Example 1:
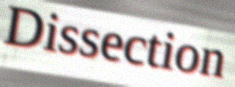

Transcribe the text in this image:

Dissection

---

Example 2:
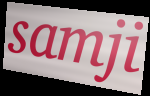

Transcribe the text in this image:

samji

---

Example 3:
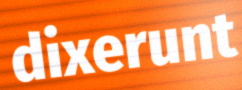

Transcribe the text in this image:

dixerunt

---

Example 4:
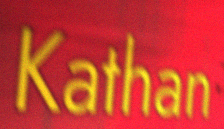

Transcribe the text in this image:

Kathan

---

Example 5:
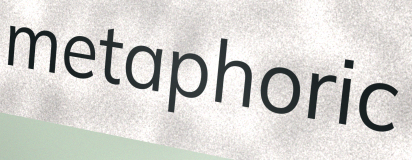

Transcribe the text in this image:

metaphoric